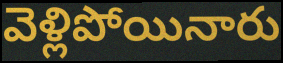
వెళ్లిపోయినారు